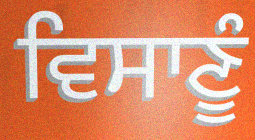
ਵਿਸਾਣੂੰ